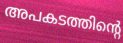
അപകടത്തിന്റെ